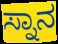
ಸ್ನಾನ